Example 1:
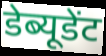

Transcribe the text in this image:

डेब्यूडेंट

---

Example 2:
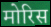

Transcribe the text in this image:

मोरिस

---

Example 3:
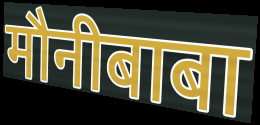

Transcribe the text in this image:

मौनीबाबा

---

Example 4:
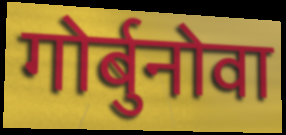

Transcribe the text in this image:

गोर्बुनोवा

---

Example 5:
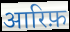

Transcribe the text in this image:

आरिफ़